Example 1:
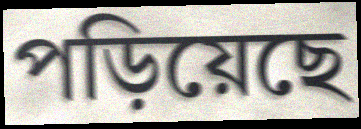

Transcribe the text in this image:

পড়িয়েছে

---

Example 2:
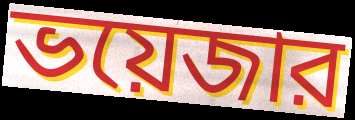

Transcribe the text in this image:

ভয়েজার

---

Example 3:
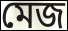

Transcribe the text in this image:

মেজ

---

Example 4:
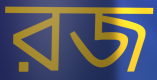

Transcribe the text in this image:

রজ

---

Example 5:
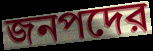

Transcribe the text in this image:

জনপদের